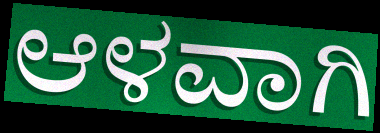
ಆಳವಾಗಿ